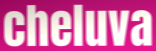
cheluva